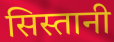
सिस्तानी